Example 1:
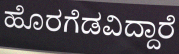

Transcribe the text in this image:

ಹೊರಗೆಡವಿದ್ದಾರೆ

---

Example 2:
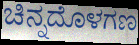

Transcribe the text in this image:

ಚಿನ್ನದೊಳಗಣ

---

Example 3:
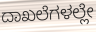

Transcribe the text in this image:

ದಾಖಲೆಗಳಲ್ಲೇ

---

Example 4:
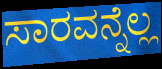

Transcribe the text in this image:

ಸಾರವನ್ನೆಲ್ಲ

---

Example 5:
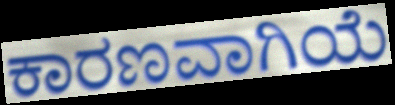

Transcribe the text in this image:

ಕಾರಣವಾಗಿಯೆ